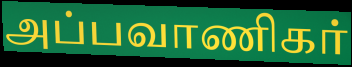
அப்பவாணிகர்